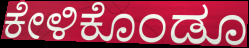
ಕೇಳಿಕೊಂಡೂ